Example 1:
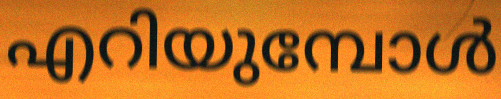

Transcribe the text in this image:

എറിയുമ്പോൾ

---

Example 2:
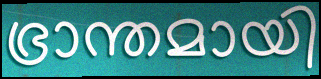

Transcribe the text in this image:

ഭ്രാന്തമായി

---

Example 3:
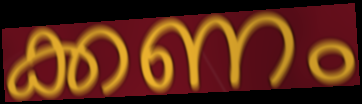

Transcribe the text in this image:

ക്കണം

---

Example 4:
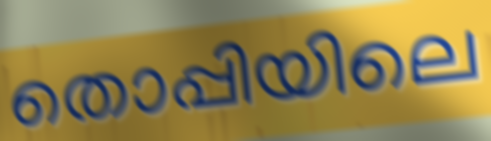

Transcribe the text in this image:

തൊപ്പിയിലെ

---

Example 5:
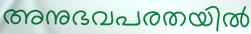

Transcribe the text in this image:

അനുഭവപരതയിൽ